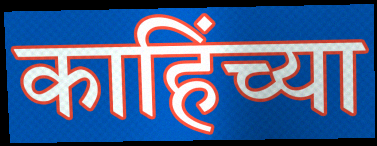
काहिंच्या